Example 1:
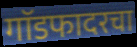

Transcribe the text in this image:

गॉडफादरचा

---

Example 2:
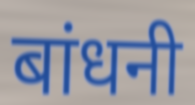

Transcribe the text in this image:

बांधनी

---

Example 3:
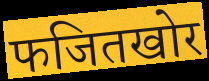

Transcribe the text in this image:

फजितखोर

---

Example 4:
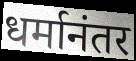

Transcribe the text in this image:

धर्मानंतर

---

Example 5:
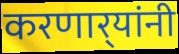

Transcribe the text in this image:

करणार्‍यांनी